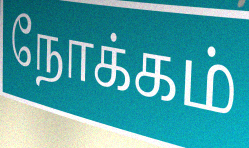
நோக்கம்